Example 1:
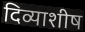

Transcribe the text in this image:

दिव्याशीष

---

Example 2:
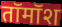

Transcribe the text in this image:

तॉमॉश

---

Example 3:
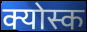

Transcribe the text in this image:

क्योस्क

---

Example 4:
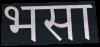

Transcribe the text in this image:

भसा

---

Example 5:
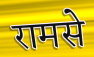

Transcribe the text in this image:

रामसे